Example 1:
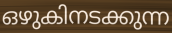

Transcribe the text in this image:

ഒഴുകിനടക്കുന്ന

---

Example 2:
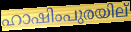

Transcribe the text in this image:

ഹാഷിംപുരയില്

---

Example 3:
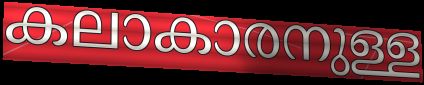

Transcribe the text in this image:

കലാകാരനുള്ള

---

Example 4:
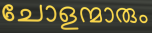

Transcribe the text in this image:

ചോളന്മാരും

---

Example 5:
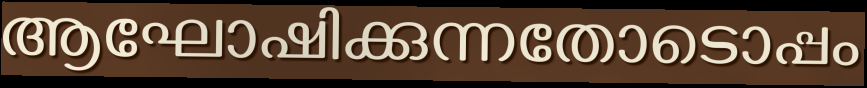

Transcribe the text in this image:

ആഘോഷിക്കുന്നതോടൊപ്പം